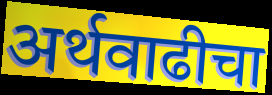
अर्थवाढीचा